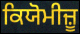
ਕਿਯੋਮੀਜ਼ੂ